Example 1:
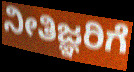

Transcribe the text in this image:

ನೀತಿಜ್ಞರಿಗೆ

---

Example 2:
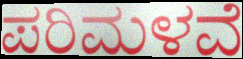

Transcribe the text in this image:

ಪರಿಮಳವೆ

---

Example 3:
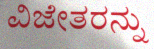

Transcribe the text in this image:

ವಿಜೇತರನ್ನು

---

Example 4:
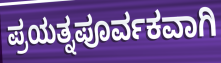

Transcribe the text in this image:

ಪ್ರಯತ್ನಪೂರ್ವಕವಾಗಿ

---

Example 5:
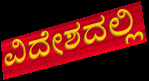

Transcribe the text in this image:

ವಿದೇಶದಲ್ಲಿ